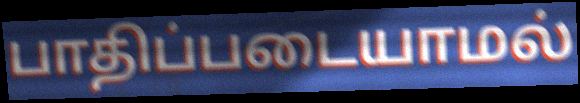
பாதிப்படையாமல்